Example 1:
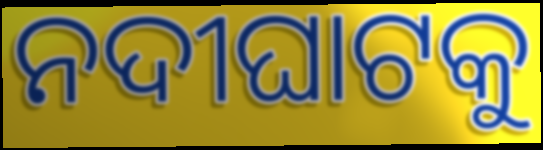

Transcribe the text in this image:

ନଦୀଘାଟକୁ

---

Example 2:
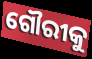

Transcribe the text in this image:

ଗୌରୀକୁ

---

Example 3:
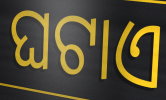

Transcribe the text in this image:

ଘଟାଏ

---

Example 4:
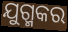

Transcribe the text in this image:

ଯୁଗ୍ମକର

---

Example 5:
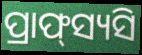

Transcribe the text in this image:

ପ୍ରାଫ୍‌ସ୍ୟସି